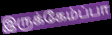
இருக்கேம்ப்பா